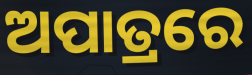
ଅପାତ୍ରରେ